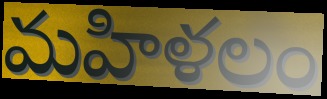
మహిళలం